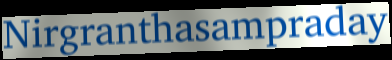
Nirgranthasampraday